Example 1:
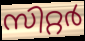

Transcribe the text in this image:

സിറ്റർ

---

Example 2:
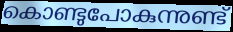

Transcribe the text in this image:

കൊണ്ടുപോകുന്നുണ്ട്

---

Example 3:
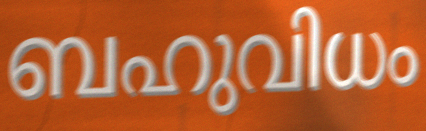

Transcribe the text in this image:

ബഹുവിധം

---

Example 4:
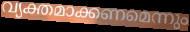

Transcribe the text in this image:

വ്യക്തമാക്കണമെന്നും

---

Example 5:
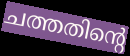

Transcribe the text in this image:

ചത്തതിന്റെ